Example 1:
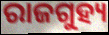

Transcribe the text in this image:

ରାଜଗୁହ୍ୟ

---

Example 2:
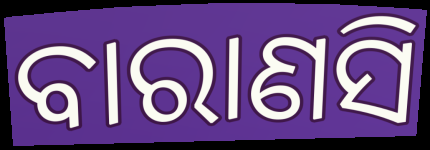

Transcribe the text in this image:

ବାରାଣସି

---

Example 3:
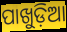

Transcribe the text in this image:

ପାଖୁଡ଼ିଆ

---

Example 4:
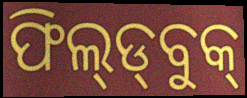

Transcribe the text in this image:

ଫିଲ୍‍ଡ୍‍ବୁକ୍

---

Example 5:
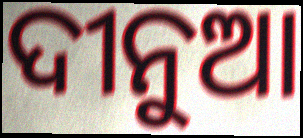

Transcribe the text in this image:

ଦୀନୁଆ